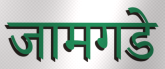
जामगडे